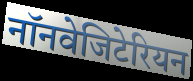
नॉनवेजिटेरियन